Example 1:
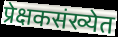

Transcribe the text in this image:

प्रेक्षकसंख्येत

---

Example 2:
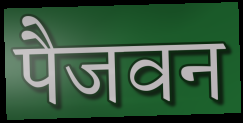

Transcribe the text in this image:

पैजवन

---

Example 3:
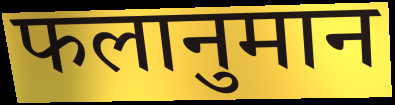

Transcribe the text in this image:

फलानुमान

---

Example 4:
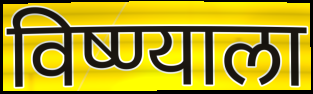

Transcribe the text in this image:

विष्ण्याला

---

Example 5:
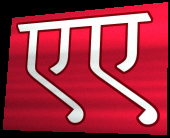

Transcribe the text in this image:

एए